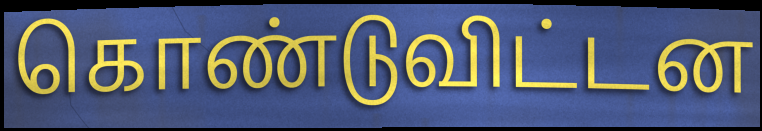
கொண்டுவிட்டன